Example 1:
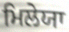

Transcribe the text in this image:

ਮਿਲੇਯਾ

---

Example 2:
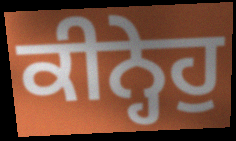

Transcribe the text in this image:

ਕੀਨ੍ਹੇਹੁ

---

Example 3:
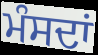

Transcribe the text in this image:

ਮੰਸਦਾਂ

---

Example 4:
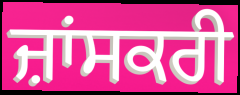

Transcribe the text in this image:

ਜ਼ਾਂਸਕਰੀ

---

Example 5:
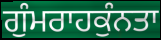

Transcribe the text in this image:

ਗੁੰਮਰਾਹਕੁੰਨਤਾ